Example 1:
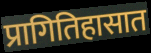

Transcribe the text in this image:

प्रागितिहासात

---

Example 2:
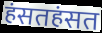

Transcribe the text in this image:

हंसतहंसत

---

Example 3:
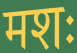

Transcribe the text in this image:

मशः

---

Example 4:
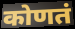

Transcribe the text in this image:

कोणतं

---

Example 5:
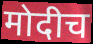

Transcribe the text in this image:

मोदीच